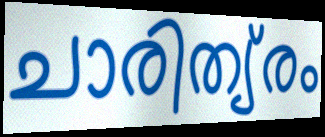
ചാരിത്യ്രം